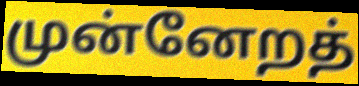
முன்னேறத்